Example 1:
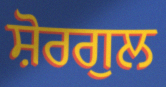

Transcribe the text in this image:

ਸ਼ੋਰਗੁਲ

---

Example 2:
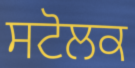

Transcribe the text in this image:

ਸਟੋਲਕ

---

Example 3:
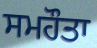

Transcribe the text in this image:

ਸਮਹੌਤਾ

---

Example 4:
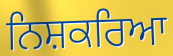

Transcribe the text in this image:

ਨਿਸ਼ਕਰਿਆ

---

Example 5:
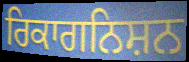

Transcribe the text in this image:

ਰਿਕਾਗਨਿਸ਼ਨ